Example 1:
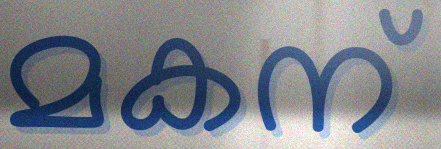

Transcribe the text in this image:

മകന്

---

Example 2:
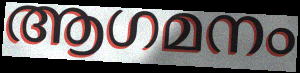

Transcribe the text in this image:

ആഗമനം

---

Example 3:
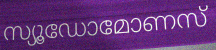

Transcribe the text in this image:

സ്യൂഡോമോണസ്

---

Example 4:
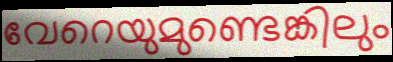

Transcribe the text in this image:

വേറെയുമുണ്ടെങ്കിലും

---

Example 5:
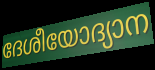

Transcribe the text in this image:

ദേശീയോദ്യാന